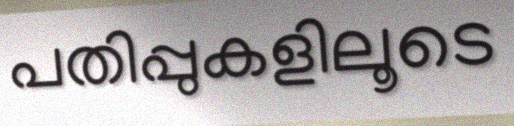
പതിപ്പുകളിലൂടെ